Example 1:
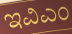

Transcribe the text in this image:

ಇವಿಎಂ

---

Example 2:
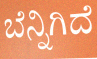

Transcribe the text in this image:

ಬೆನ್ನಿಗಿದೆ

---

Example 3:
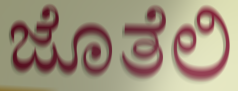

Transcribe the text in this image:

ಜೊತೆಲಿ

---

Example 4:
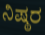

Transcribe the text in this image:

ನಿಷ್ಠರ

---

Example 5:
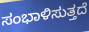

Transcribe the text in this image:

ಸಂಭಾಳಿಸುತ್ತದೆ